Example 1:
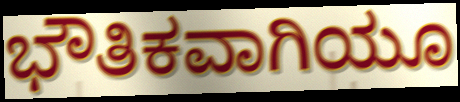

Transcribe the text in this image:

ಭೌತಿಕವಾಗಿಯೂ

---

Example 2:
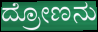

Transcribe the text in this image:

ದ್ರೋಣನು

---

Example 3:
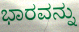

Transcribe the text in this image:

ಭಾರವನ್ನು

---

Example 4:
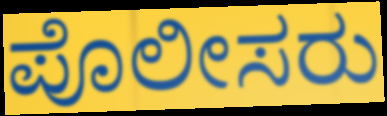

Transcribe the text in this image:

ಪೊಲೀಸರು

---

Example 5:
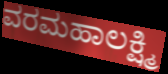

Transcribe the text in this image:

ವರಮಹಾಲಕ್ಷ್ಮಿ